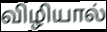
விழியால்